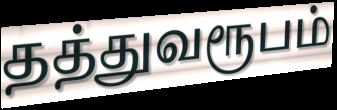
தத்துவரூபம்